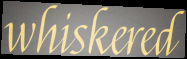
whiskered